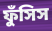
ফুঁসিস